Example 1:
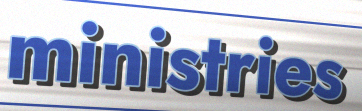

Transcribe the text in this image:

ministries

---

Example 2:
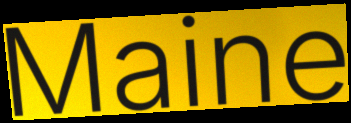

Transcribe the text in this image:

Maine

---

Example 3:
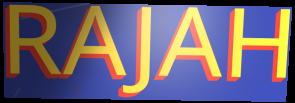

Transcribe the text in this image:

RAJAH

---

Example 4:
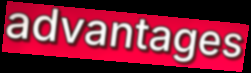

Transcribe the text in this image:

advantages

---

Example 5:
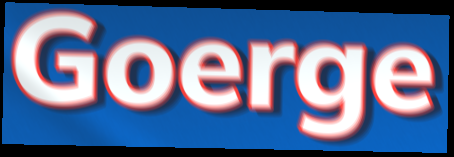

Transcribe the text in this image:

Goerge